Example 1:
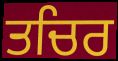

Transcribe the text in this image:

ਤਚਿਰ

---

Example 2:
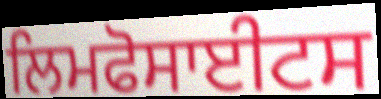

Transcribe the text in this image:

ਲਿਮਫੋਸਾਈਟਸ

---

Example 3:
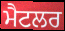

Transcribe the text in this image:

ਮੈਟਲਰ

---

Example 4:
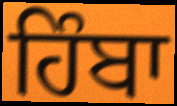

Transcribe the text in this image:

ਹਿੰਬਾ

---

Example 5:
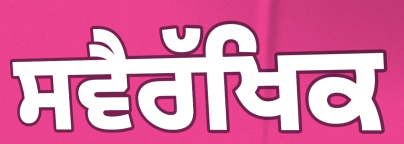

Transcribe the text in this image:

ਸਵੈਰੱਖਿਕ